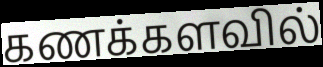
கணக்களவில்